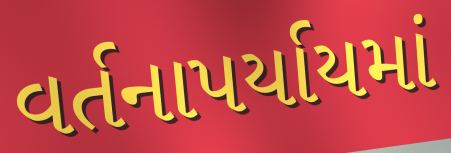
વર્તનાપર્યાયમાં